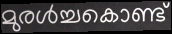
മുരൾച്ചകൊണ്ട്